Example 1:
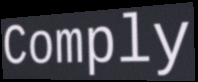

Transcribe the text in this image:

Comply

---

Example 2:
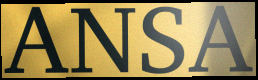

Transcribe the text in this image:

ANSA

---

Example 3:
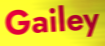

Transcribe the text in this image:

Gailey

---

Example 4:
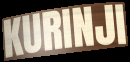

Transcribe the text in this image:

KURINJI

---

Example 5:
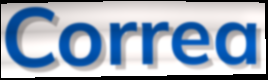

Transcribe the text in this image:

Correa